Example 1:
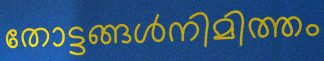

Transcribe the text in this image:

തോട്ടങ്ങൾനിമിത്തം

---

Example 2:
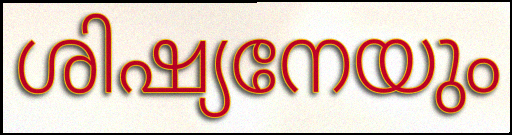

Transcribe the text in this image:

ശിഷ്യനേയും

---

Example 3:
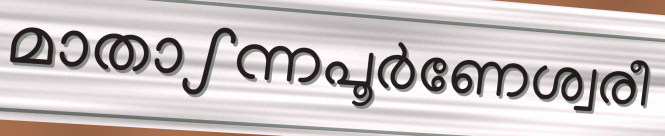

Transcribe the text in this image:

മാതാഽന്നപൂർണേശ്വരീ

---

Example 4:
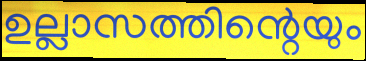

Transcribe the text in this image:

ഉല്ലാസത്തിന്റെയും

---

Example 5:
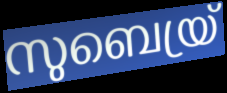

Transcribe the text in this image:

സുബെയ്ര്